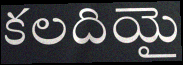
కలదియై